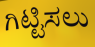
ಗಿಟ್ಟಿಸಲು